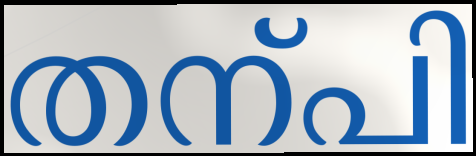
തന്പി